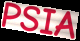
PSIA